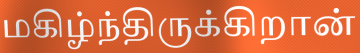
மகிழ்ந்திருக்கிறான்